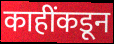
काहींकडून